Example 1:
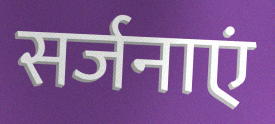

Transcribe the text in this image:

सर्जनाएं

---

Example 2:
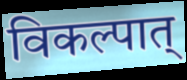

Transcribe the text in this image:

विकल्पात्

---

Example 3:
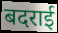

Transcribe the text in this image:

बदराई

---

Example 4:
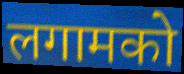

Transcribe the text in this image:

लगामको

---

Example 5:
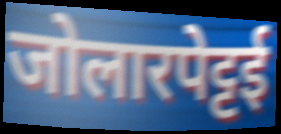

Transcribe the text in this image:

जोलारपेट्टई